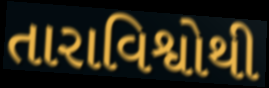
તારાવિશ્વોથી